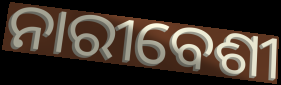
ନାରୀବେଶୀ